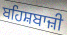
ਬਹਿਸ਼ਬਾਜ਼ੀ